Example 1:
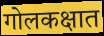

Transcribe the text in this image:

गोलकक्षात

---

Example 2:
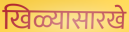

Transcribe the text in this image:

खिळ्यासारखे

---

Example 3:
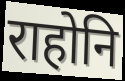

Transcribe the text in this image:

राहोनि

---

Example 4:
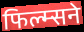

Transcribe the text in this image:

फिल्म्सने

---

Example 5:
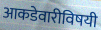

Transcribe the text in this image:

आकडेवारीविषयी